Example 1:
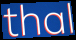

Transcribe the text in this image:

thal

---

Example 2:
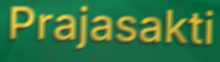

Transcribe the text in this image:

Prajasakti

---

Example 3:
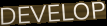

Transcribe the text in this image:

DEVELOP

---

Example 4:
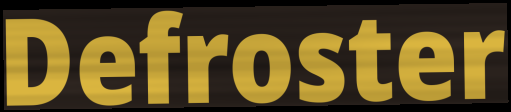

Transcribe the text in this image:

Defroster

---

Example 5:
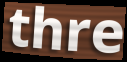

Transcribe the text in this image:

thre